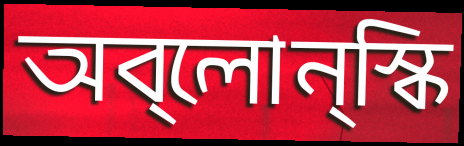
অব্‌লোন্‌স্কি